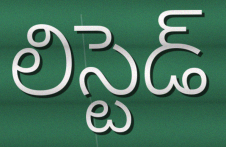
లిస్టెడ్